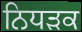
ਨਿਧਡ਼ਕ